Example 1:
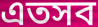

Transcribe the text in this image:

এতসব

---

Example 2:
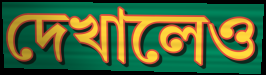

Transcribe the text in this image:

দেখালেও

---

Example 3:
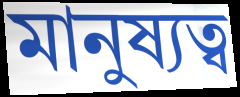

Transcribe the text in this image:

মানুষ্যত্ব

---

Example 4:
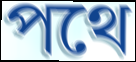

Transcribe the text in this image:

পথে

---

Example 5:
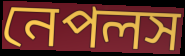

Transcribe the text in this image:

নেপলস